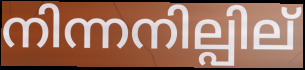
നിന്നനില്പില്